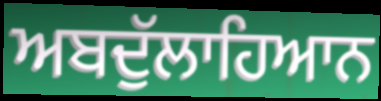
ਅਬਦੁੱਲਾਹਿਆਨ